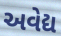
અવેદ્ય